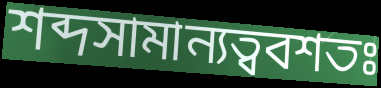
শব্দসামান্যত্ববশতঃ